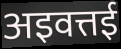
अइवत्तई